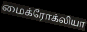
மைக்ரோக்லியா